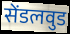
सेंडलवुड